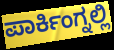
ಪಾರ್ಕಿಂಗ್ನಲ್ಲಿ